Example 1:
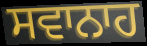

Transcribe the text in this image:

ਸਵਾਨਾਹ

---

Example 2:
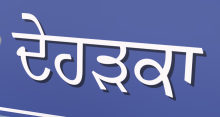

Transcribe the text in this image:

ਦੇਹੜਕਾ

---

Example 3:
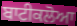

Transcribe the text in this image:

ਬਾਟੀਕਲੋਆ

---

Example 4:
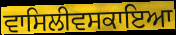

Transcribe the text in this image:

ਵਾਸਿਲੀਵਸਕਾਇਆ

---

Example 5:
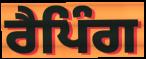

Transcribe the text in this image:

ਰੈਪਿੰਗ